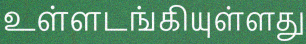
உள்ளடங்கியுள்ளது